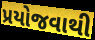
પ્રયોજવાથી